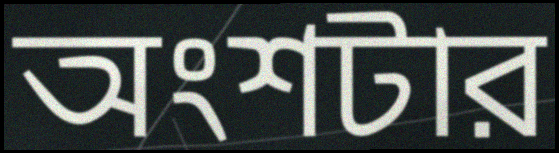
অংশটার